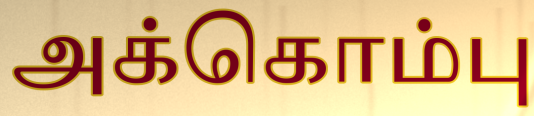
அக்கொம்பு